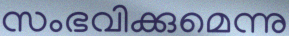
സംഭവിക്കുമെന്നു